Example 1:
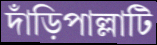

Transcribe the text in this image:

দাঁড়িপাল্লাটি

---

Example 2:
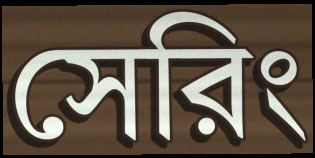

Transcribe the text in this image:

সেরিং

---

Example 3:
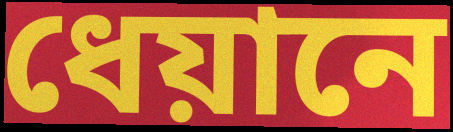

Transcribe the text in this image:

ধেয়ানে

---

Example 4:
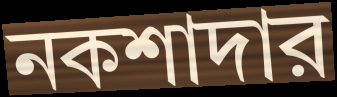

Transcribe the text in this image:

নকশাদার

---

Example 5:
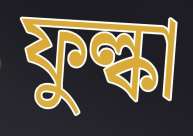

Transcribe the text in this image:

ফুল্কা